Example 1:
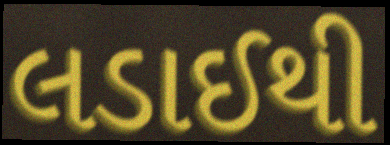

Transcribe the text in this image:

લડાઈથી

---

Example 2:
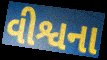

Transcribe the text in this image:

વીશ્વના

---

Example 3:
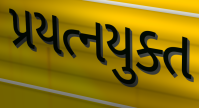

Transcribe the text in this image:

પ્રયત્નયુક્ત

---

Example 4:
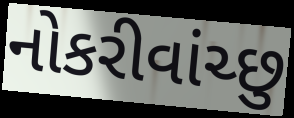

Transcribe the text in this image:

નોકરીવાંચ્છુ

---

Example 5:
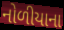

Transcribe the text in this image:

નોળીયાના